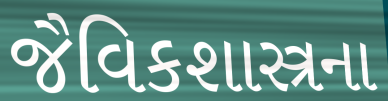
જૈવિકશાસ્ત્રના